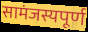
सामंजस्यपूर्ण